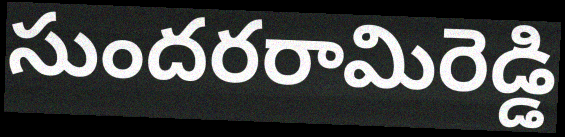
సుందరరామిరెడ్డి